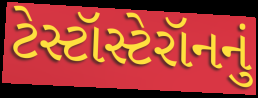
ટેસ્ટૉસ્ટેરૉનનું